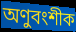
অণুবংশীক